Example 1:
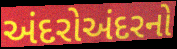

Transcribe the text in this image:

અંદરોઅંદરનો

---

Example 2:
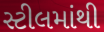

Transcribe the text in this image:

સ્ટીલમાંથી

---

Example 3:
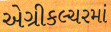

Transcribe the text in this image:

એગ્રીકલ્ચરમાં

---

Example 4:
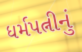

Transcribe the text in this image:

ધર્મપત્નીનું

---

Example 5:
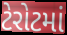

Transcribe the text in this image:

ટેરોટમાં